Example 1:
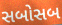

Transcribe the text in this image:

સબોસબ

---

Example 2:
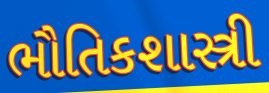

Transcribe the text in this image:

ભૌતિકશાસ્ત્રી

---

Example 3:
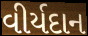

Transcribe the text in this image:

વીર્યદાન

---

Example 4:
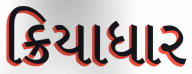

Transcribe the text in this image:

ક્રિયાધાર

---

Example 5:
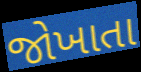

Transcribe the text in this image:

જોખાતા